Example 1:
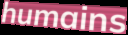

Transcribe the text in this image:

humains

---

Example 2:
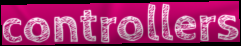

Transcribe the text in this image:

controllers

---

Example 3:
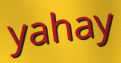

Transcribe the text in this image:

yahay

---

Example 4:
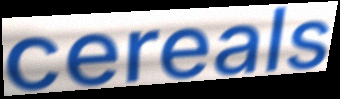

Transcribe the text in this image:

cereals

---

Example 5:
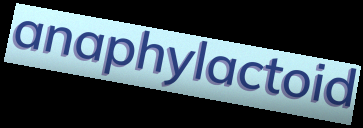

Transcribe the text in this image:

anaphylactoid